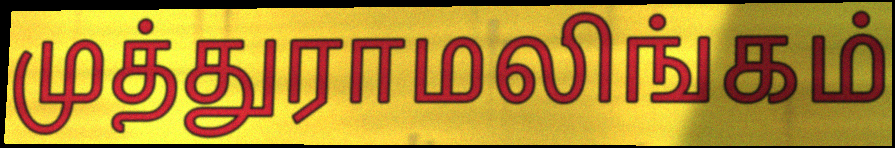
முத்துராமலிங்கம்